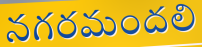
నగరమందలి